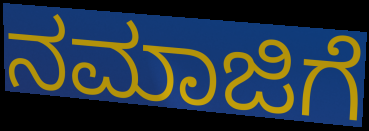
ನಮಾಜಿಗೆ